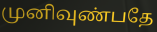
முனிவுண்பதே